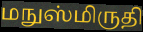
மநுஸ்மிருதி